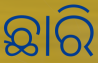
ଛାରି